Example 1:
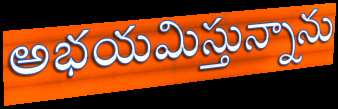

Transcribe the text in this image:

అభయమిస్తున్నాను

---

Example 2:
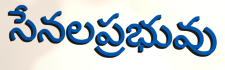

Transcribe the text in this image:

సేనలప్రభువు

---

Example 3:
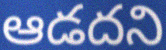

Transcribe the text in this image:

ఆడదని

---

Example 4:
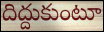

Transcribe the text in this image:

దిద్దుకుంటూ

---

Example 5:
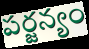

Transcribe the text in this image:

పర్జన్యం